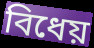
বিধেয়